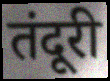
तंदूरी